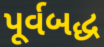
પૂર્વબદ્ધ